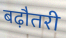
बढ़ौतरी